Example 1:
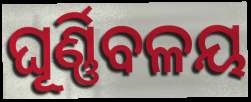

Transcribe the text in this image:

ଘୂର୍ଣ୍ଣିବଳୟ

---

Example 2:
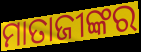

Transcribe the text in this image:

ମାତାଜୀଙ୍କର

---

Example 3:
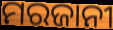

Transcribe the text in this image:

ମରଜାନୀ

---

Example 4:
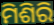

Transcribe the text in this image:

ମିଶିରି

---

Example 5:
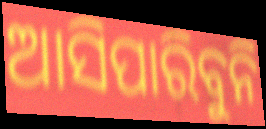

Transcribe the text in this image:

ଆସିପାରିବୁନି